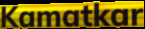
Kamatkar